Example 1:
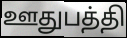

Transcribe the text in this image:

ஊதுபத்தி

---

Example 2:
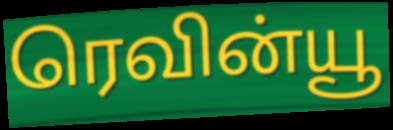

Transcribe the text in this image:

ரெவின்யூ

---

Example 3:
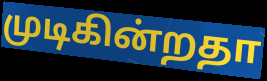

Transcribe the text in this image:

முடிகின்றதா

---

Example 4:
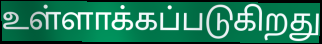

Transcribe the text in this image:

உள்ளாக்கப்படுகிறது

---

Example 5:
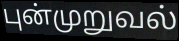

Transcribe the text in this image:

புன்முறுவல்